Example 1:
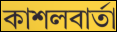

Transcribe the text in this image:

কাশলবার্তা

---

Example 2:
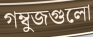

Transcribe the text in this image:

গম্বুজগুলো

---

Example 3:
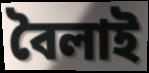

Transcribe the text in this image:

বৈলাই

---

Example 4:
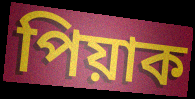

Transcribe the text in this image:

পিয়াক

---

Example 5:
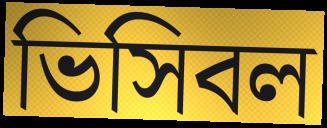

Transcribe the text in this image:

ভিসিবল